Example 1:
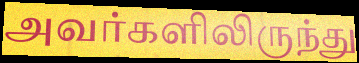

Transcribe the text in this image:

அவர்களிலிருந்து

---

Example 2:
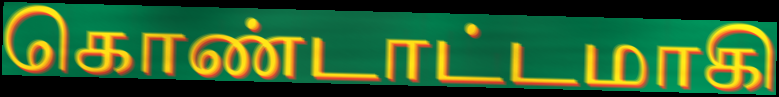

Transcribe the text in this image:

கொண்டாட்டமாகி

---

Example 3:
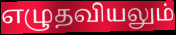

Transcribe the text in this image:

எழுதவியலும்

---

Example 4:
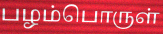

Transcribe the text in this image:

பழம்பொருள்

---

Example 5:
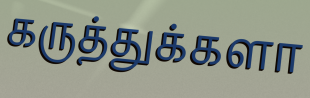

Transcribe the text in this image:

கருத்துக்களா